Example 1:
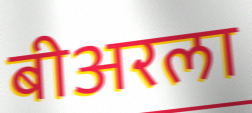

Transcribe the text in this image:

बीअरला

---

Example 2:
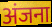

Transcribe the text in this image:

अंजना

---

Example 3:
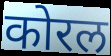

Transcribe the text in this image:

कोरल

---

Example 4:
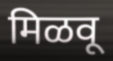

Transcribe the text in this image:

मिळवू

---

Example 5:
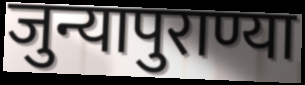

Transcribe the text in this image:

जुन्यापुराण्या